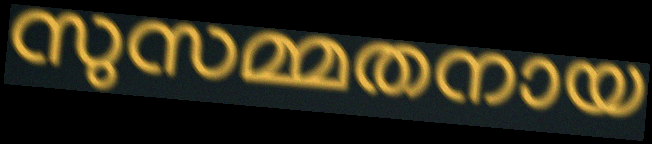
സുസമ്മതനായ